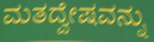
ಮತದ್ವೇಷವನ್ನು